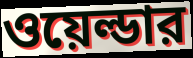
ওয়েল্ডার